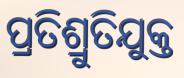
ପ୍ରତିଶ୍ରୁତିଯୁକ୍ତ